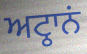
ਅਟ੍ਠਾਨਂ